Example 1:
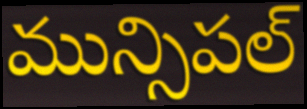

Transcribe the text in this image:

మున్సిపల్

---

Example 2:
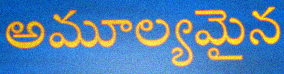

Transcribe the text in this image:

అమూల్యమైన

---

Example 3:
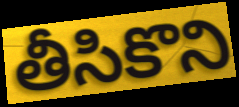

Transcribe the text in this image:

తీసికొని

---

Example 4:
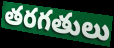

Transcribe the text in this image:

తరగతులు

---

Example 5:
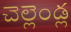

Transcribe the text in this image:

చెల్లెండ్ల